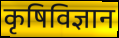
कृषिविज्ञान